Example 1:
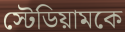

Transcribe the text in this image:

স্টেডিয়ামকে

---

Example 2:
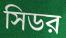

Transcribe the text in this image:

সিডর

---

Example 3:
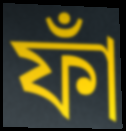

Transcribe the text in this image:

ফাঁ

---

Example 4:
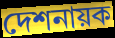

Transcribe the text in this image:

দেশনায়ক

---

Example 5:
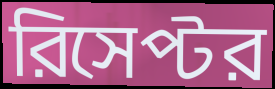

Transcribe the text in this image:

রিসেপ্টর